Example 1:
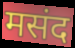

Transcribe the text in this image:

मसंद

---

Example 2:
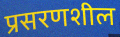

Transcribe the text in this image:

प्रसरणशील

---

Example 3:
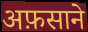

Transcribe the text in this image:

अफ़साने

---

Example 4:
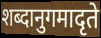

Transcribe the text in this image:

शब्दानुगमादृते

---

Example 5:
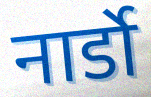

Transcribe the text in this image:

नार्डो